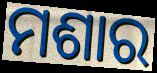
ମଶାର